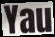
Yau